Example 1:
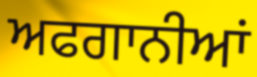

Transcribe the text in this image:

ਅਫਗਾਨੀਆਂ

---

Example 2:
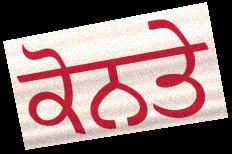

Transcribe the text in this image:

ਕੋਨਤੇ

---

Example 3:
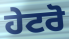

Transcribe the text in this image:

ਹੇਟਰੋ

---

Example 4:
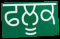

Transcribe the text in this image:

ਫਲੂਕ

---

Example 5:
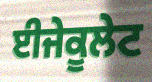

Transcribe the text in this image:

ਈਜੇਕੂਲੇਟ